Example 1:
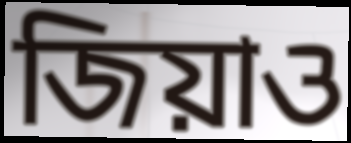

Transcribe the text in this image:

জিয়াও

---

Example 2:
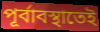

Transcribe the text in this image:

পূর্বাবস্থাতেই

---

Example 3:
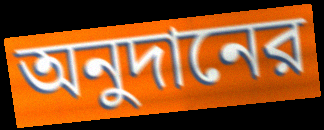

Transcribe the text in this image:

অনুদানের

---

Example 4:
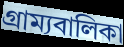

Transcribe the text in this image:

গ্রাম্যবালিকা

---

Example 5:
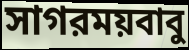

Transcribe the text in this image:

সাগরময়বাবু